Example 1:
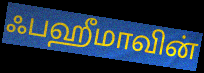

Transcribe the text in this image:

ஃபஹீமாவின்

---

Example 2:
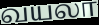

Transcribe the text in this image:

வயலா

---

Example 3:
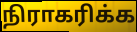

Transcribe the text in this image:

நிராகரிக்க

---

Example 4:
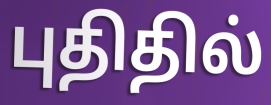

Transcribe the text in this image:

புதிதில்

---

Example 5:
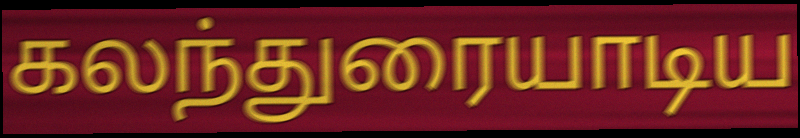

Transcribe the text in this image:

கலந்துரையாடிய